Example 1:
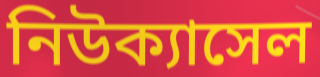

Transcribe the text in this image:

নিউক্যাসেল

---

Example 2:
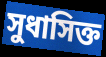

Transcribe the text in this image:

সুধাসিক্ত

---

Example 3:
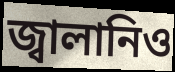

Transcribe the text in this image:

জ্বালানিও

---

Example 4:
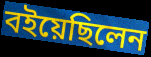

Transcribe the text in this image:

বইয়েছিলেন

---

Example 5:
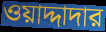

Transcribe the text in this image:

ওয়াদ্দাদার